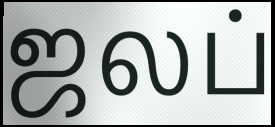
ஜலப்